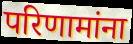
परिणामांना